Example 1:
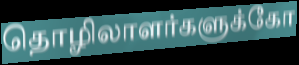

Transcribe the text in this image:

தொழிலாளர்களுக்கோ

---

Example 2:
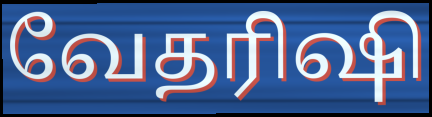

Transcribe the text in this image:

வேதரிஷி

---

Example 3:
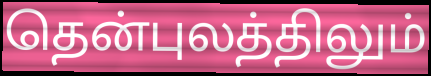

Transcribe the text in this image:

தென்புலத்திலும்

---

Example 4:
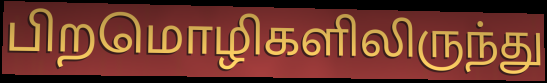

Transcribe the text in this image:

பிறமொழிகளிலிருந்து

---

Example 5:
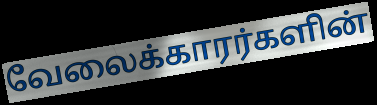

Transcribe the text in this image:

வேலைக்காரர்களின்